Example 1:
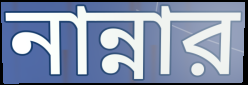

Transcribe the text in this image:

নান্নার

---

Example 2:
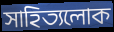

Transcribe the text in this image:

সাহিত্যলোক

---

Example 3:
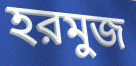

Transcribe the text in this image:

হরমুজ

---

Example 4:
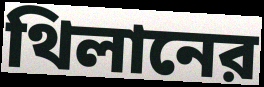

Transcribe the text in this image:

থিলানের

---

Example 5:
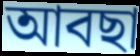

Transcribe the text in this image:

আবছা